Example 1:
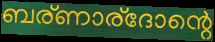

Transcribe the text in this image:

ബര്ണാര്ദോന്റെ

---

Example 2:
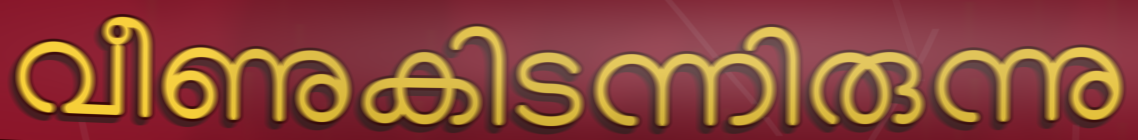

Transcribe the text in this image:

വീണുകിടന്നിരുന്നു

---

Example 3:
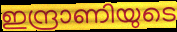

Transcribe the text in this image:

ഇന്ദ്രാണിയുടെ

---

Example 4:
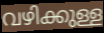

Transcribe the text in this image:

വഴിക്കുള്ള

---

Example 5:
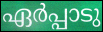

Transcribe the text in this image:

ഏർപ്പാടു